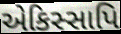
એકિસ્સાપિ